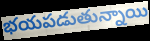
భయపడుతున్నాయి